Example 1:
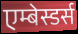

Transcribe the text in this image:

एम्बेस्डर्स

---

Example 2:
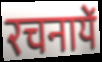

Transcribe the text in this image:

रचनायें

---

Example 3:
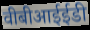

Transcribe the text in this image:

वीबीआईईडी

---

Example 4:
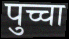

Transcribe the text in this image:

पुच्चा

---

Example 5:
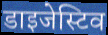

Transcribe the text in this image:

डाइजेस्टिव